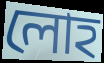
লোহ